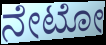
ನೇಟೋ